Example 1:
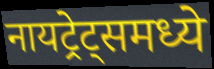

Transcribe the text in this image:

नायट्रेट्समध्ये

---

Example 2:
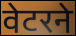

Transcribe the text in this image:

वेटरने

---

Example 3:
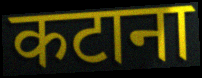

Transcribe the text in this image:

कटाना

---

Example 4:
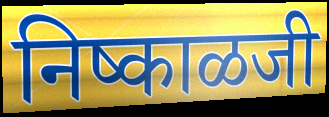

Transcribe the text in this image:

निष्काळजी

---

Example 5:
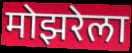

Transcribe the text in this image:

मोझरेला